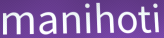
manihoti